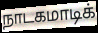
நாடகமாடிக்